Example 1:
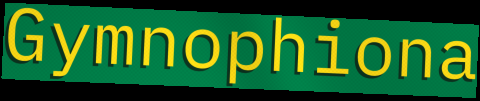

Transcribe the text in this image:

Gymnophiona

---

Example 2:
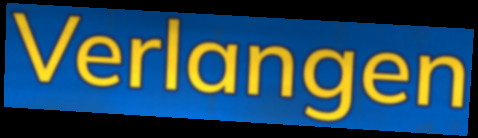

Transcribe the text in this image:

Verlangen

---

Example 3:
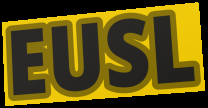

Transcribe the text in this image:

EUSL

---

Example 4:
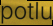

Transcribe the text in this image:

potlu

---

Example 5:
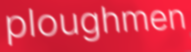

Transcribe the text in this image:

ploughmen